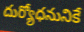
దుర్యోధనునికే